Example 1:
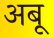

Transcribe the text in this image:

अबू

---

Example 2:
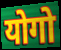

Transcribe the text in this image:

योगो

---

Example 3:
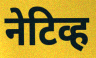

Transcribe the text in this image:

नेटिव्ह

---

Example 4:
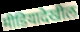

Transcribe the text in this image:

मीडियादेखील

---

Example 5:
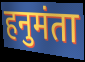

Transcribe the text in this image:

हनुमंता